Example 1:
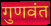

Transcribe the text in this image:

गुणवंत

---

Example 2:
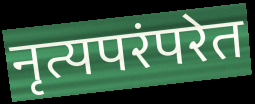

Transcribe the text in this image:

नृत्यपरंपरेत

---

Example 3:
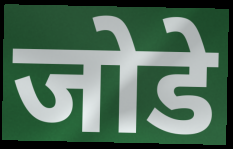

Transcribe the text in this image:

जोडे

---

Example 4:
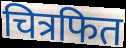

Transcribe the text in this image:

चित्रफित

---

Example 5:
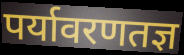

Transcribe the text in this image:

पर्यावरणतज्ञ